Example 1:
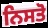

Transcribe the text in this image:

ਨਿਸਤੋ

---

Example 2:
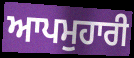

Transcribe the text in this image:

ਆਪਮੁਹਾਰੀ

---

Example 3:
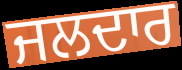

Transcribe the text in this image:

ਜਲਦਾਰ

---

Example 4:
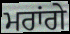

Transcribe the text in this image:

ਮਰਾਂਗੇ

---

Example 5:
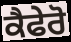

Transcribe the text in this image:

ਕੈਫੇਰੋ